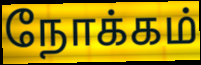
நோக்கம்